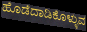
ಹೊಡೆದಾಡಿಕೊಳ್ಳುವ